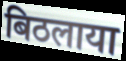
बिठलाया